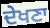
ਦੇਖਣਾ